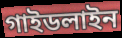
গাইডলাইন